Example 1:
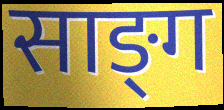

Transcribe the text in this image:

साङ्ग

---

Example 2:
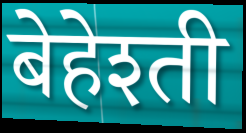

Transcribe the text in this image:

बेहेश्ती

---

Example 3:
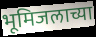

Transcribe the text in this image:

भूमिजलाच्या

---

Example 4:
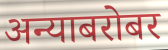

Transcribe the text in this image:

अन्याबरोबर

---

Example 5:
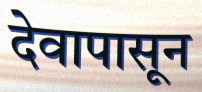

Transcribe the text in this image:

देवापासून